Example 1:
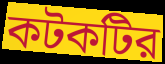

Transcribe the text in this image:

কটকটির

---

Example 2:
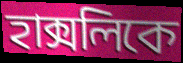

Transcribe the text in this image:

হাক্সলিকে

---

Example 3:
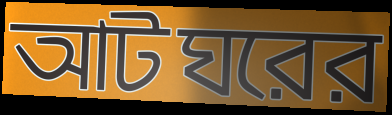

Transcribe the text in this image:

আটঘরের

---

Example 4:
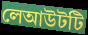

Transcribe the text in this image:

লেআউটটি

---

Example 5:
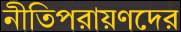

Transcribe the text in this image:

নীতিপরায়ণদের